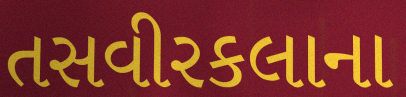
તસવીરકલાના